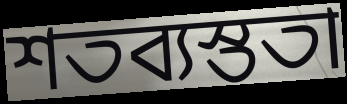
শতব্যস্ততা